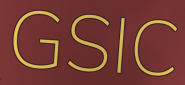
GSIC